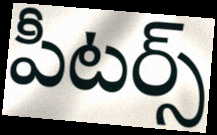
పీటర్స్